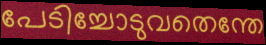
പേടിച്ചോടുവതെന്തേ